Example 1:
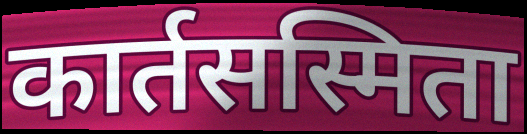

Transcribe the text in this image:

कार्तसस्मिता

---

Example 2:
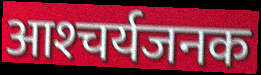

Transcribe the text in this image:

आश्‍चर्यजनक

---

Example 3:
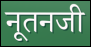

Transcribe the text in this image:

नूतनजी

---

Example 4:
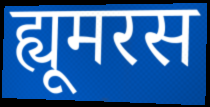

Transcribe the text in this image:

ह्यूमरस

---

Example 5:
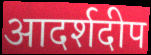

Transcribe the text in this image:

आदर्शदीप